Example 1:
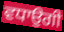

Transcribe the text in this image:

ਵਧਾਉਗੀ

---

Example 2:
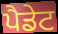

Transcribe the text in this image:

ਪੈਡੇਟ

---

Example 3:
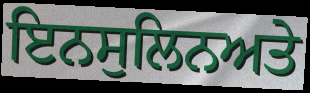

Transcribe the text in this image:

ਇਨਸੁਲਿਨਅਤੇ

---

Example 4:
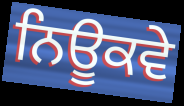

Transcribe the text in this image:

ਨਿਊਕਵੇ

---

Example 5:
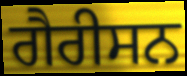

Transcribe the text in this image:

ਗੈਰੀਸਨ